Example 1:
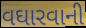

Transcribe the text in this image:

વઘારવાની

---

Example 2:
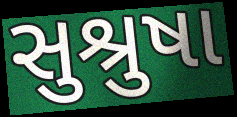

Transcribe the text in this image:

સુશ્રુષા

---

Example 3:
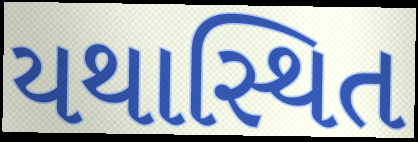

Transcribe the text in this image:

યથાસ્થિત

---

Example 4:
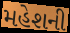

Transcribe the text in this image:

મહેશની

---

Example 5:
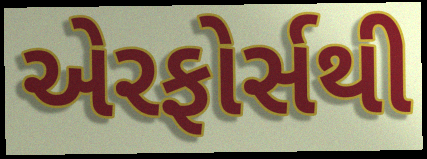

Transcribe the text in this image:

એરફોર્સથી